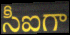
సీఐగా